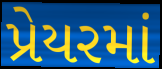
પ્રેયરમાં